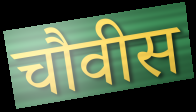
चौवीस